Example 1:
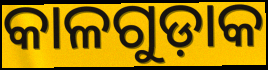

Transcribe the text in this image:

କାଳଗୁଡ଼ାକ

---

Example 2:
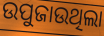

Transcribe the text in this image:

ଉପୁଜାଉଥିଲା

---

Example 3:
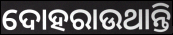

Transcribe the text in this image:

ଦୋହରାଉଥାନ୍ତି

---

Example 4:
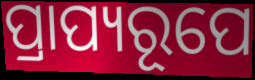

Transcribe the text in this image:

ପ୍ରାପ୍ୟରୂପେ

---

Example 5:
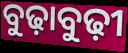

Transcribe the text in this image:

ବୁଢ଼ାବୁଢ଼ୀ